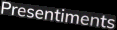
Presentiments